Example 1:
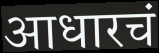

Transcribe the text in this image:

आधारचं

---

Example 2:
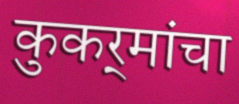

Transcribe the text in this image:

कुकर्मांचा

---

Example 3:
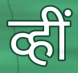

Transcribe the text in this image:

व्हीं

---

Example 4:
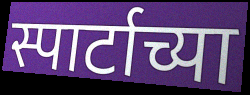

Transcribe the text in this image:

स्पार्टाच्या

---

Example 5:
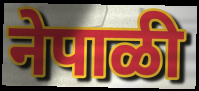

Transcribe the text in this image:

नेपाळी